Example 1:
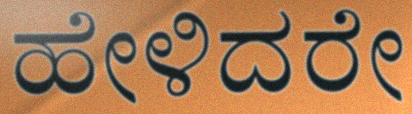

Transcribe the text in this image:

ಹೇಳಿದರೇ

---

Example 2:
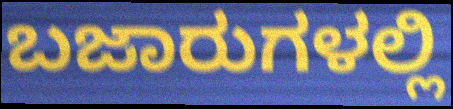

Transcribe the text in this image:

ಬಜಾರುಗಳಲ್ಲಿ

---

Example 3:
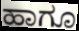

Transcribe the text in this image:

ಹಾಗೂ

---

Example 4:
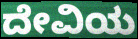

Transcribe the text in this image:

ದೇವಿಯ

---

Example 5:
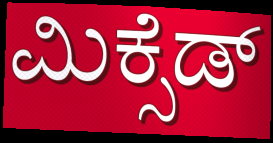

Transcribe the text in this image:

ಮಿಕ್ಸೆಡ್